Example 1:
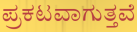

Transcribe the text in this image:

ಪ್ರಕಟವಾಗುತ್ತವೆ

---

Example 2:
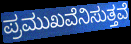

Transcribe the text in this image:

ಪ್ರಮುಖವೆನಿಸುತ್ತವೆ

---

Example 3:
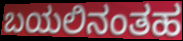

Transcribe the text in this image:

ಬಯಲಿನಂತಹ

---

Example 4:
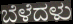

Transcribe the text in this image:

ಬೆಳೆದಳು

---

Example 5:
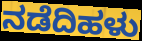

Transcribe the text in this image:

ನಡೆದಿಹಳು